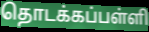
தொடக்கப்பள்ளி